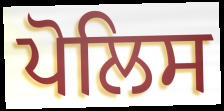
ਪੋਲਿਸ